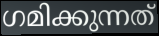
ഗമിക്കുന്നത്